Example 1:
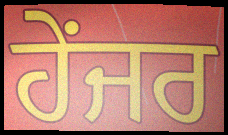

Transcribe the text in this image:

ਹੇਂਜਰ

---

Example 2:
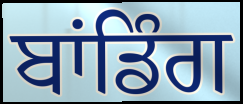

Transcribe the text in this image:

ਬਾਂਡਿੰਗ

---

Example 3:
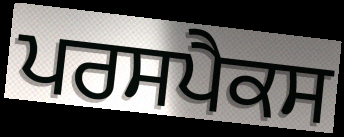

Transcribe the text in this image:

ਪਰਸਪੈਕਸ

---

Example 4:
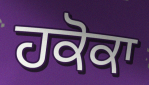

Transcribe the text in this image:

ਹਕੋਕਾ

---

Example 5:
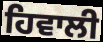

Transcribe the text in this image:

ਹਿਵਾਲੀ